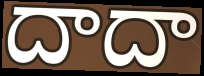
దాదా